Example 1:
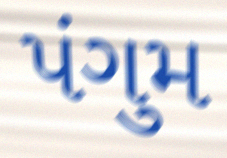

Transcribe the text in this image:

પંગુમ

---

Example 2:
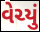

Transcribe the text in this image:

વેચ્યું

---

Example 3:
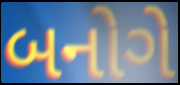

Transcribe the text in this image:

બનોગે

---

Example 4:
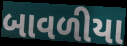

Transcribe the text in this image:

બાવળીયા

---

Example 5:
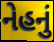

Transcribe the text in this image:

નેહનું